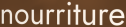
nourriture